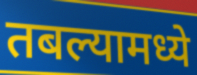
तबल्यामध्ये